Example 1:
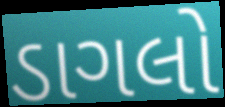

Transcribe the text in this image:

ડાગલો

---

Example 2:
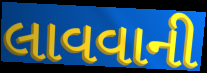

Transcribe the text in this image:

લાવવાની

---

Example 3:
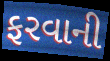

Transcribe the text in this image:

ફરવાની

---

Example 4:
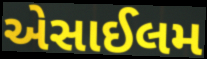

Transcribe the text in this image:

એસાઈલમ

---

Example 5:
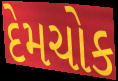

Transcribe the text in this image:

દેમચોક